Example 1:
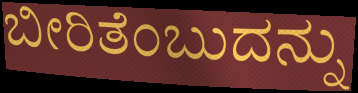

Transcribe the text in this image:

ಬೀರಿತೆಂಬುದನ್ನು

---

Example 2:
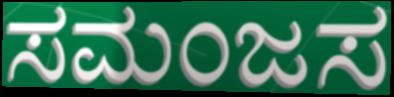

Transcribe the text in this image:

ಸಮಂಜಸ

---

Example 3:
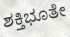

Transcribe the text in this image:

ಶಕ್ತಿಭೂತೇ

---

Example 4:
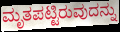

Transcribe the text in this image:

ಮೃತಪಟ್ಟಿರುವುದನ್ನು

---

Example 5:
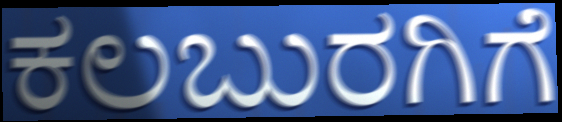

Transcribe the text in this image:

ಕಲಬುರಗಿಗೆ